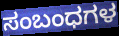
ಸಂಬಂಧಗಳ